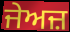
ਜੇਅਜ਼